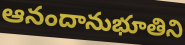
ఆనందానుభూతిని